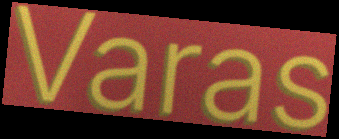
Varas